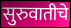
सुरुवातीचे